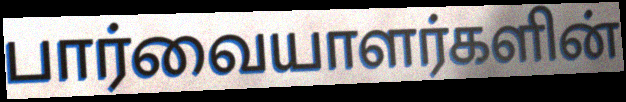
பார்வையாளர்களின்